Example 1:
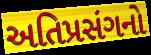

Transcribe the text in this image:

અતિપ્રસંગનો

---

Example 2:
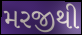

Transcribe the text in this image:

મરજીથી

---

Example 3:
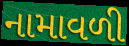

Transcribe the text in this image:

નામાવળી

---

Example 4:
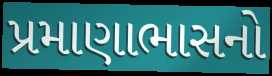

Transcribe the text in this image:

પ્રમાણાભાસનો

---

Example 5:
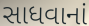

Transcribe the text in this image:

સાધવાનાં